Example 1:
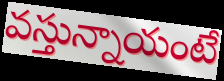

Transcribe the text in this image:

వస్తున్నాయంటే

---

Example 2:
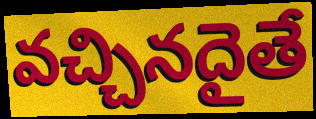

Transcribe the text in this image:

వచ్చినదైతే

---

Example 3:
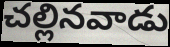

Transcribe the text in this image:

చల్లినవాడు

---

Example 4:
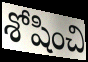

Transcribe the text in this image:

శోషించి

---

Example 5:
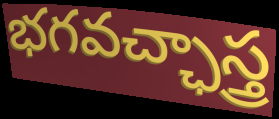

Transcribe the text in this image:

భగవచ్ఛాస్త్ర